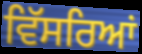
ਵਿੱਸਰਿਆਂ